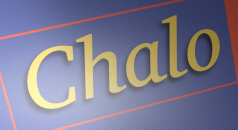
Chalo